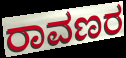
ರಾವಣರ